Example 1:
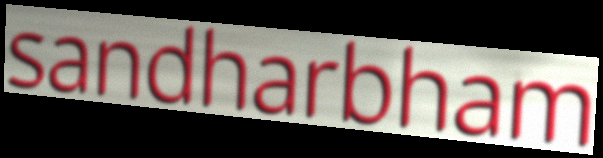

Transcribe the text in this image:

sandharbham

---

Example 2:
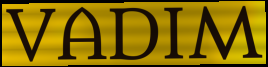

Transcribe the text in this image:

VADIM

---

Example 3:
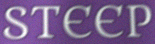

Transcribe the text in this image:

STEEP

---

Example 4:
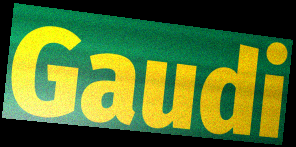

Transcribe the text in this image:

Gaudi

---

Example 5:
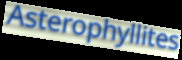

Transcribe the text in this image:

Asterophyllites